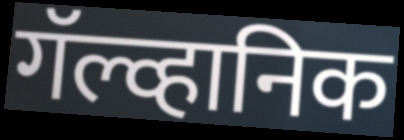
गॅल्व्हानिक